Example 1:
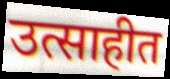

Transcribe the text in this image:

उत्साहीत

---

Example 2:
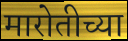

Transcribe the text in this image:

मारोतीच्या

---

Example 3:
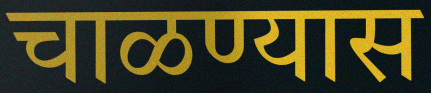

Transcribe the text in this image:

चाळण्यास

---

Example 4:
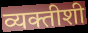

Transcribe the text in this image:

व्यक्‍तीशी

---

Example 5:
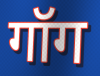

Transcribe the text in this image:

गॉग